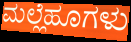
ಮಲ್ಲೆಹೂಗಳು